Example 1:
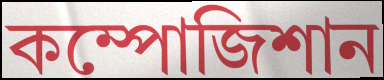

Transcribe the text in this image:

কম্পোজিশান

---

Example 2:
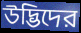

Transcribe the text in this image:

উদ্ভিদের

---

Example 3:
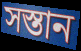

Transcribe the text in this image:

সস্তান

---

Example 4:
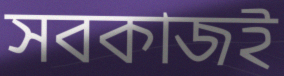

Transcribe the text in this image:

সবকাজই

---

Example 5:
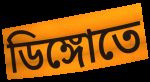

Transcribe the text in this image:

ডিঙ্গোতে